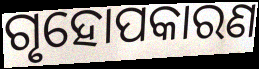
ଗୃହୋପକାରଣ